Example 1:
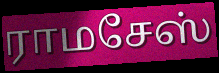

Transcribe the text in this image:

ராமசேஸ்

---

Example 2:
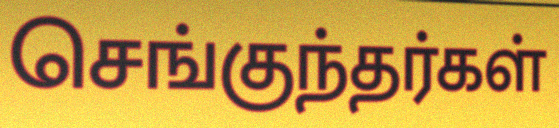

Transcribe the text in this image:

செங்குந்தர்கள்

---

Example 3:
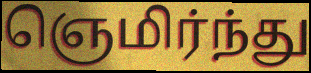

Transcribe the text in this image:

ஞெமிர்ந்து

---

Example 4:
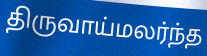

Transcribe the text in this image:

திருவாய்மலர்ந்த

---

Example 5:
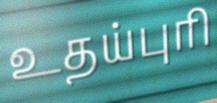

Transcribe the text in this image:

உதய்புரி